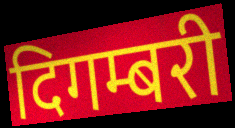
दिगम्बरी